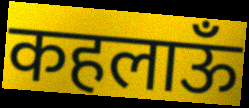
कहलाऊँ